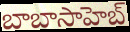
బాబాసాహెబ్